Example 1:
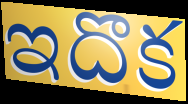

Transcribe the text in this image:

ఇదొక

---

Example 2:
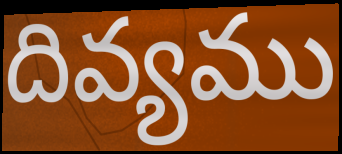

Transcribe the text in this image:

దివ్యము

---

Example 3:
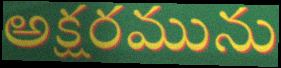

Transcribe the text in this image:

అక్షరమును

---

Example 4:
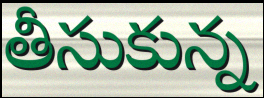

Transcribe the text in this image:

తీసుకున్న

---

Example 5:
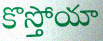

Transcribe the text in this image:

కొస్తోయా